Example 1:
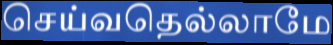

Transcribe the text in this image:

செய்வதெல்லாமே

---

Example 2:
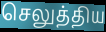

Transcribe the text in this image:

செலுத்திய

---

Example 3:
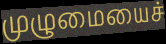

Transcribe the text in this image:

முழுமையைச்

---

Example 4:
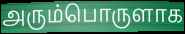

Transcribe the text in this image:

அரும்பொருளாக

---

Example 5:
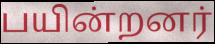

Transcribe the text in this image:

பயின்றனர்